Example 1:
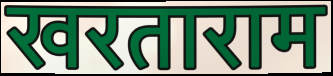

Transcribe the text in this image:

खरताराम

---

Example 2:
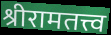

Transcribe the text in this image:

श्रीरामतत्त्व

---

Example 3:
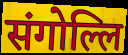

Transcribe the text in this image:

संगोल्लि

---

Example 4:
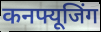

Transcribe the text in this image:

कनफ्यूजिंग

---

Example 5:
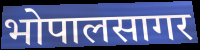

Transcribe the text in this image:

भोपालसागर